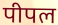
पीपल